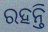
ରହନ୍ତି